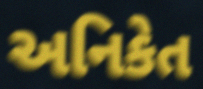
અનિકેત